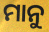
ମାନୁ